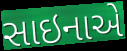
સાઇનાએ